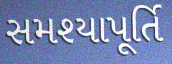
સમશ્યાપૂર્તિ